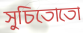
সুচিতোতো